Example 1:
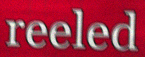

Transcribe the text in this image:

reeled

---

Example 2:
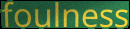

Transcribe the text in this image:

foulness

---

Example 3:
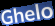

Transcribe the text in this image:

Ghelo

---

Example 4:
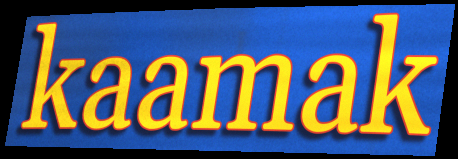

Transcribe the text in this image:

kaamak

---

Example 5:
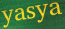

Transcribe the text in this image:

yasya